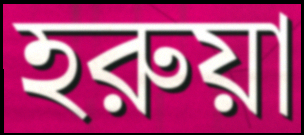
হরুয়া